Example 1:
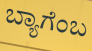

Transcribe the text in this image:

ಬ್ಯಾಗೆಂಬ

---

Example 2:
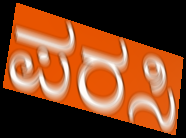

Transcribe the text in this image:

ಪರಸಿ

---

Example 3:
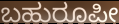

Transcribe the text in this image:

ಬಹುರೂಪೀ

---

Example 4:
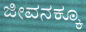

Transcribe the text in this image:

ಜೀವನಕ್ಕೂ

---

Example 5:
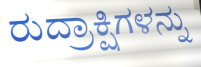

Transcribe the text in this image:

ರುದ್ರಾಕ್ಷಿಗಳನ್ನು